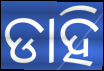
ଡାହି